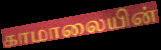
காமாலையின்